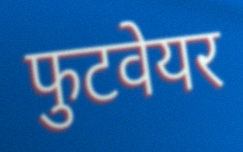
फुटवेयर